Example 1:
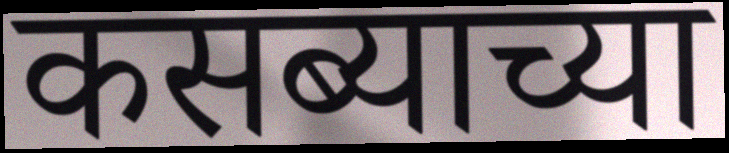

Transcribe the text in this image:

कसब्याच्या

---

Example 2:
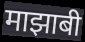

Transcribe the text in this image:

माझाबी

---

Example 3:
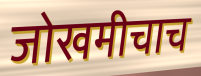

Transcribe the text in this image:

जोखमीचाच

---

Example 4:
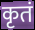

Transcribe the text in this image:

कृतं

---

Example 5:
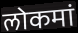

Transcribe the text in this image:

लोकमां